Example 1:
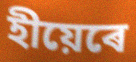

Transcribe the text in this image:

হীয়েৰে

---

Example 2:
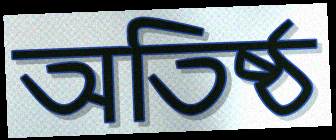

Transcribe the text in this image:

অতিষ্ঠ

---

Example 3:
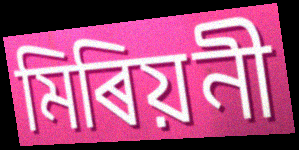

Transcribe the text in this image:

মিৰিয়নী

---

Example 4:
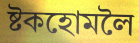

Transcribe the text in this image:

ষ্টকহোমলৈ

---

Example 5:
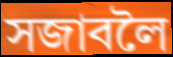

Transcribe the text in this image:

সজাবলৈ